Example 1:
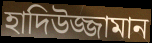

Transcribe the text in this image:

হাদিউজ্জামান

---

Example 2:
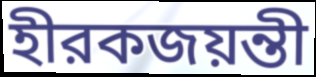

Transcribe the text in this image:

হীরকজয়ন্তী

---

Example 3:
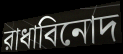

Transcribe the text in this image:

রাধাবিনোদ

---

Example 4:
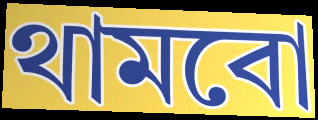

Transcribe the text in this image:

থামবো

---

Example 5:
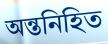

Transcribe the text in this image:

অন্তনিহিত